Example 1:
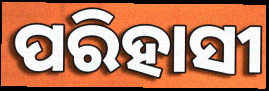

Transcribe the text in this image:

ପରିହାସୀ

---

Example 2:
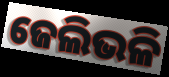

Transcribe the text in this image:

ଜେଲିଭଳି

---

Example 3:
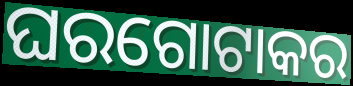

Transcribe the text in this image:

ଘରଗୋଟାକର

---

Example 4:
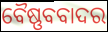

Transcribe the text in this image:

ବୈଷ୍ଣବବାଦର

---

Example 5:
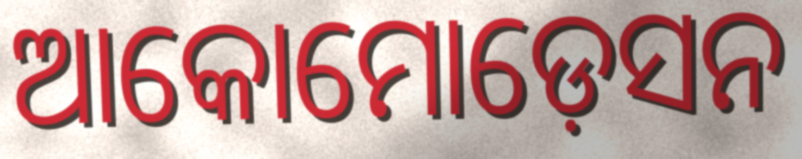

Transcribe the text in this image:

ଆକୋମୋଡ଼େସନ